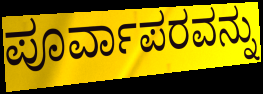
ಪೂರ್ವಾಪರವನ್ನು